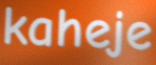
kaheje